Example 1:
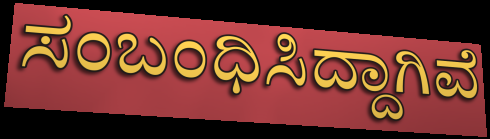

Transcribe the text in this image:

ಸಂಬಂಧಿಸಿದ್ದಾಗಿವೆ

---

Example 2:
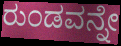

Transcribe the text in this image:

ರುಂಡವನ್ನೇ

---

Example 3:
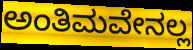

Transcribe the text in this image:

ಅಂತಿಮವೇನಲ್ಲ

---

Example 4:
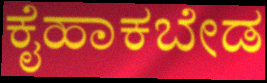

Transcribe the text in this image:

ಕೈಹಾಕಬೇಡ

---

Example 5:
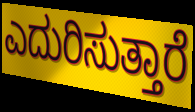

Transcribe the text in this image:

ಎದುರಿಸುತ್ತಾರೆ